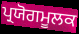
ਪ੍ਰਯੋਗਮੂਲਕ